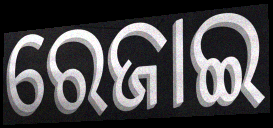
ରେଜାଇ